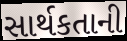
સાર્થકતાની